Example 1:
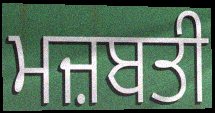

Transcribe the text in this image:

ਮਜ਼ਬਤੀ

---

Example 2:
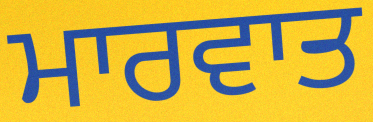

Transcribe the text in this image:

ਮਾਰਵਾਤ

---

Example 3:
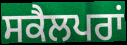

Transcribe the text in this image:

ਸਕੈਲਪਰਾਂ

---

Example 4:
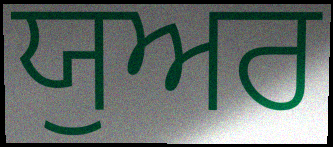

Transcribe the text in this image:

ਯੁਅਰ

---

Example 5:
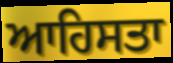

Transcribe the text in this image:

ਆਹਿਸਤਾ